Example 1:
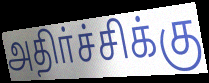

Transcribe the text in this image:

அதிர்ச்சிக்கு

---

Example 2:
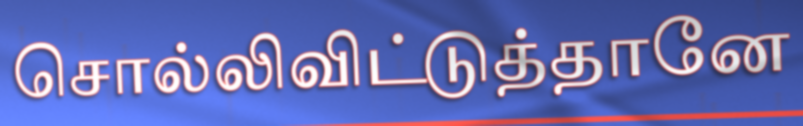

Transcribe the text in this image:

சொல்லிவிட்டுத்தானே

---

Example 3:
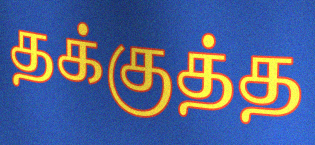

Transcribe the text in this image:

தக்குத்த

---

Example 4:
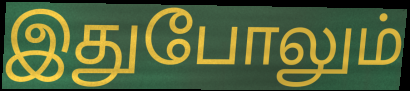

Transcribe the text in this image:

இதுபோலும்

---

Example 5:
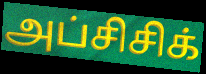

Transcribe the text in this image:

அப்சிசிக்